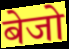
बेजो